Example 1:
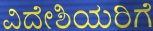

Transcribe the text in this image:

ವಿದೇಶಿಯರಿಗೆ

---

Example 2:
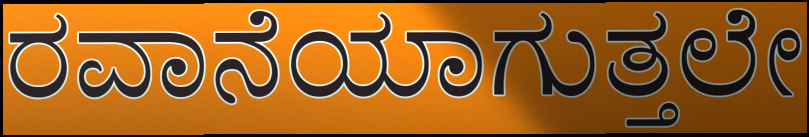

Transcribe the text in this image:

ರವಾನೆಯಾಗುತ್ತಲೇ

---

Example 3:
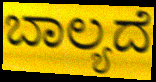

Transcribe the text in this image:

ಬಾಲ್ಯದೆ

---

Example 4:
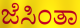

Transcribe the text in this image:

ಜೆಸಿಂತಾ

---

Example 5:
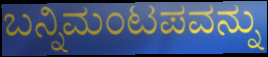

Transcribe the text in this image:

ಬನ್ನಿಮಂಟಪವನ್ನು